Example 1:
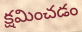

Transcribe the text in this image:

క్షమించడం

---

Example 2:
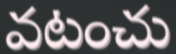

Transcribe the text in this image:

వటంచు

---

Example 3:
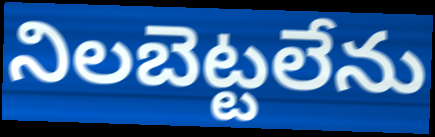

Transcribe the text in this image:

నిలబెట్టలేను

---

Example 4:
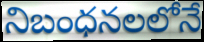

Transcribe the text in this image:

నిబంధనలలోనే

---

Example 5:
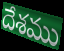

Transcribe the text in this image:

దేశము